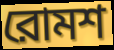
রোমশ